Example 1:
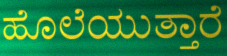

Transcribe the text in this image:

ಹೊಲೆಯುತ್ತಾರೆ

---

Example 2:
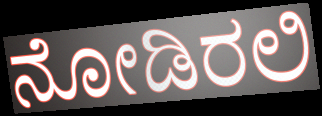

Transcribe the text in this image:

ನೋಡಿರಲಿ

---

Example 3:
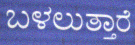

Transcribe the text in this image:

ಬಳಲುತ್ತಾರೆ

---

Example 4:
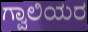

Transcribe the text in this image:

ಗ್ವಾಲಿಯರ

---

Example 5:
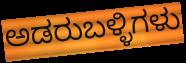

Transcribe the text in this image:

ಅಡರುಬಳ್ಳಿಗಳು